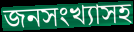
জনসংখ্যাসহ